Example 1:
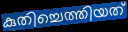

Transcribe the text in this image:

കുതിച്ചെത്തിയത്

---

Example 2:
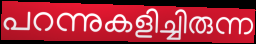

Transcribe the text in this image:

പറന്നുകളിച്ചിരുന്ന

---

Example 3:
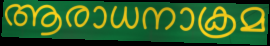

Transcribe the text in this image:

ആരാധനാക്രമ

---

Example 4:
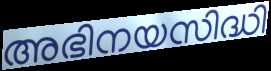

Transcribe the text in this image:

അഭിനയസിദ്ധി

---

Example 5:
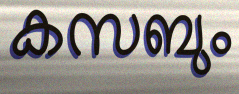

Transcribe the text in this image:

കസബും